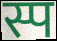
स्प